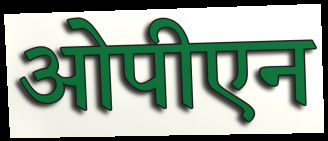
ओपीएन